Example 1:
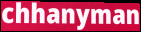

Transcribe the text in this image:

chhanyman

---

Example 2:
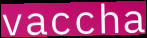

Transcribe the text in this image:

vaccha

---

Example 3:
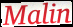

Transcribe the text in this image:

Malin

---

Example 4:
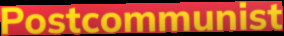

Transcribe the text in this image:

Postcommunist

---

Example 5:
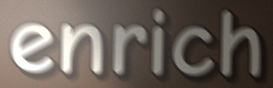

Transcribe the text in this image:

enrich